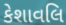
કેશાવલિ